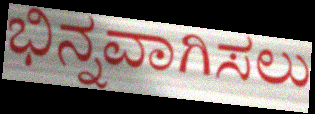
ಭಿನ್ನವಾಗಿಸಲು